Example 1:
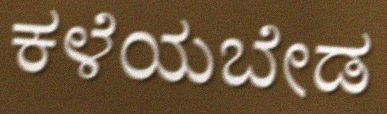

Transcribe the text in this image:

ಕಳೆಯಬೇಡ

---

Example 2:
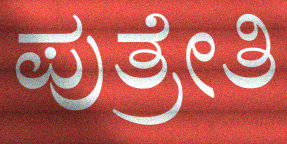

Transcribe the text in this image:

ಪುತ್ರೇತಿ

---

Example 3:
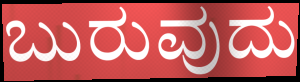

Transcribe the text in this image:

ಬುರುವುದು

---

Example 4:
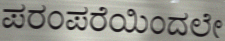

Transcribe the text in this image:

ಪರಂಪರೆಯಿಂದಲೇ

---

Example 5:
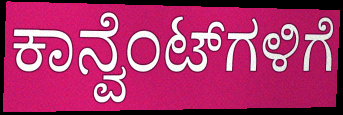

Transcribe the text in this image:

ಕಾನ್ವೆಂಟ್‌ಗಳಿಗೆ